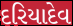
દરિયાદેવ